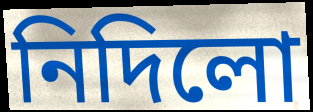
নিদিলো